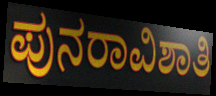
ಪುನರಾವಿಶಾತಿ